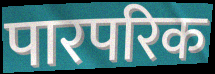
पारपरिक